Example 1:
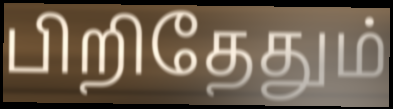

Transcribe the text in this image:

பிறிதேதும்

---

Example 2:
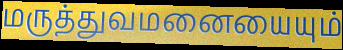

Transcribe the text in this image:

மருத்துவமனையையும்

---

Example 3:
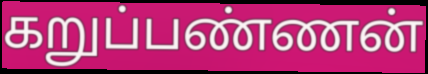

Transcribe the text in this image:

கறுப்பண்ணன்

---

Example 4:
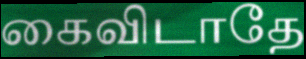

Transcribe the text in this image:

கைவிடாதே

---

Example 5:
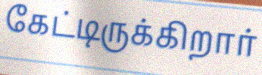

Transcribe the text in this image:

கேட்டிருக்கிறார்